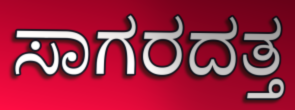
ಸಾಗರದತ್ತ